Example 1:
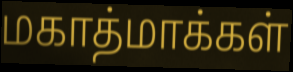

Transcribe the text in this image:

மகாத்மாக்கள்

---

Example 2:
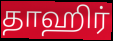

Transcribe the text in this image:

தாஹிர்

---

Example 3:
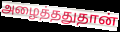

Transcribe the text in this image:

அழைத்ததுதான்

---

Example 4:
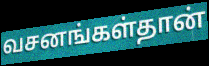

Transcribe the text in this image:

வசனங்கள்தான்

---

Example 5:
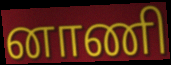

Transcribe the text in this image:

னாணி